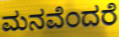
ಮನವೆಂದರೆ